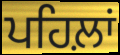
ਪਹਿਲ਼ਾਂ